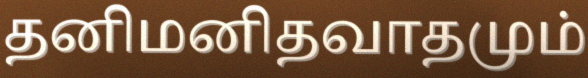
தனிமனிதவாதமும்